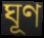
ঘূণ